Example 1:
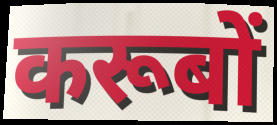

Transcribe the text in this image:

करूबों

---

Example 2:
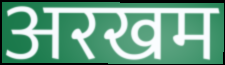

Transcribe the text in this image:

अरखम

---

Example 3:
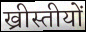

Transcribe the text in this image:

ख्रीस्तीयों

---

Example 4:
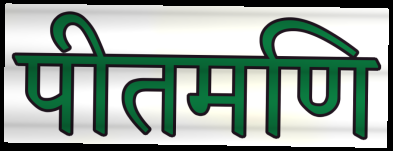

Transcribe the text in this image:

पीतमणि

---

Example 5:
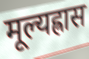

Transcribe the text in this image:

मूल्यह्रास